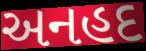
અનહદ